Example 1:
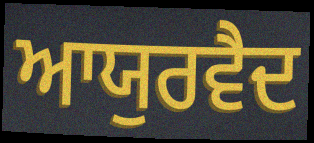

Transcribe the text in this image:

ਆਯੁਰਵੈਦ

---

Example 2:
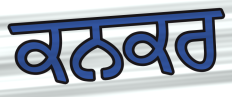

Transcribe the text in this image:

ਕਨਕਰ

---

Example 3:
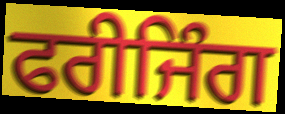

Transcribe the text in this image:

ਫਰੀਜਿੰਗ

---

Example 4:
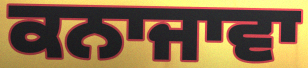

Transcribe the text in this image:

ਕਨਾਜਾਵਾ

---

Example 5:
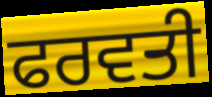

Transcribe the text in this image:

ਫਰਵਤੀ